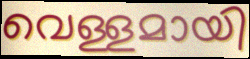
വെള്ളമായി